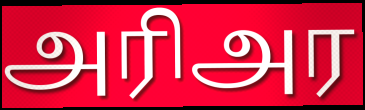
அரிஅர